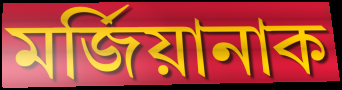
মৰ্জিয়ানাক